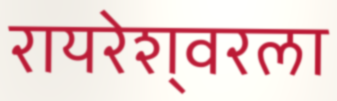
रायरेश्वरला